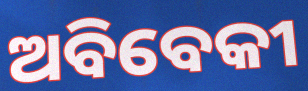
ଅବିବେକୀ